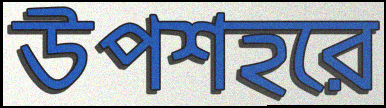
উপশহরে